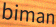
biman